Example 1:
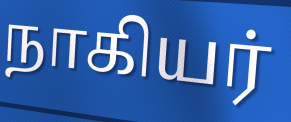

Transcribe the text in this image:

நாகியர்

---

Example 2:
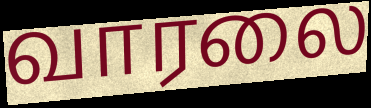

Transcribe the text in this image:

வாரலை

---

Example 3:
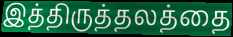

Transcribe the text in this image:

இத்திருத்தலத்தை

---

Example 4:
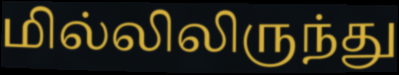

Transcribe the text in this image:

மில்லிலிருந்து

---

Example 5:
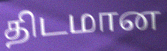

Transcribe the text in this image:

திடமான